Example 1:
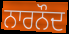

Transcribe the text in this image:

ਨਾਰਨੌਦ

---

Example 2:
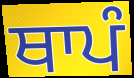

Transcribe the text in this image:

ਥਾਪੰ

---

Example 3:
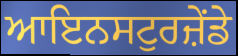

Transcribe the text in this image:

ਆਇਨਸਟੁਰਜ਼ੇਂਡੇ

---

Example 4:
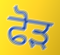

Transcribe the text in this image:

ਫੋਡ਼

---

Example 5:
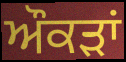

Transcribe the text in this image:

ਔਕਡ਼ਾਂ